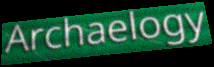
Archaelogy